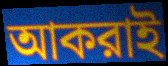
আকরাই